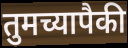
तुमच्यापैकी